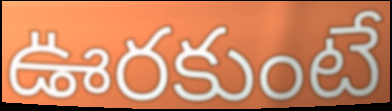
ఊరకుంటే